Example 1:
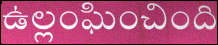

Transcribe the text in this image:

ఉల్లంఘించింది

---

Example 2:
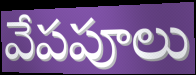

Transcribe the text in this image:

వేపపూలు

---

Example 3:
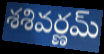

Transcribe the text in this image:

శశివర్ణమ్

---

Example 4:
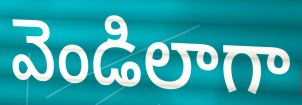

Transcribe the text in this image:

వెండిలాగా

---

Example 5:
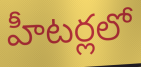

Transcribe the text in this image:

హీటర్లలో